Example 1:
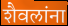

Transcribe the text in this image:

शैवलांना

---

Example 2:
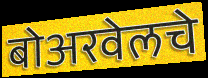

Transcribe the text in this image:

बोअरवेलचे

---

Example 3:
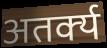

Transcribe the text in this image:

अतर्क्‍य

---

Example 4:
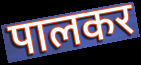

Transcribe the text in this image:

पालकर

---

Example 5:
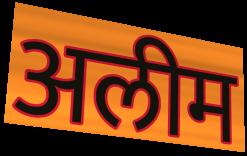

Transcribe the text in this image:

अलीम